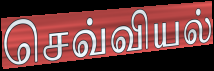
செவ்வியல்